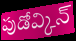
పుడోవ్కిన్